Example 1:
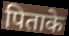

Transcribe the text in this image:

पिताके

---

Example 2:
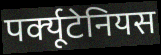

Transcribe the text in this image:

पर्क्यूटेनियस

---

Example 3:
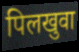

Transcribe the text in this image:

पिलखुवा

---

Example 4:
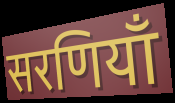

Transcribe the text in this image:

सरणियाँ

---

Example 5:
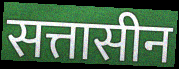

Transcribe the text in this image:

सत्तासीन